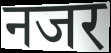
नजर